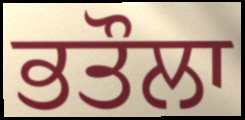
ਭਤੌਲਾ